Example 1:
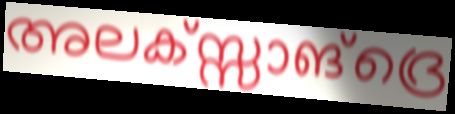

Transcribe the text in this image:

അലക്സ്സാങ്ദ്രെ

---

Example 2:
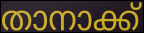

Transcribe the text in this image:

താനാക്ക്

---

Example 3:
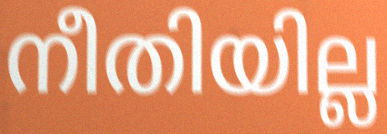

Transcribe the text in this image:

നീതിയില്ല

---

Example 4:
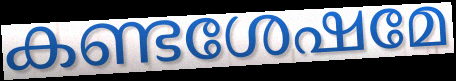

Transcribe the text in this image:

കണ്ടശേഷമേ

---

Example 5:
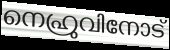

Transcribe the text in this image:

നെഹ്രുവിനോട്